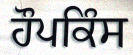
ਹੌਪਕਿੰਸ